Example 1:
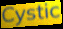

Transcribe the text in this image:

Cystic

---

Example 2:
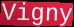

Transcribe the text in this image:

Vigny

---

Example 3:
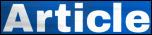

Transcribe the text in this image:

Article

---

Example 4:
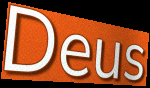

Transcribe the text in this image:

Deus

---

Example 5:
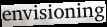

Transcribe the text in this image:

envisioning